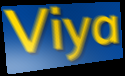
Viya